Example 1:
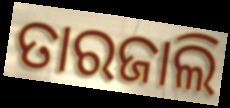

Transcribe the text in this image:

ତାରଜାଲି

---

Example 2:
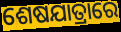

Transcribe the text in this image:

ଶେଷଯାତ୍ରାରେ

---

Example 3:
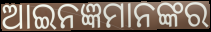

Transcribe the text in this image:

ଆଇନଜ୍ଞମାନଙ୍କର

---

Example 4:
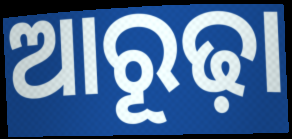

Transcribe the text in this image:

ଆରୂଢ଼ା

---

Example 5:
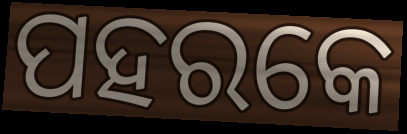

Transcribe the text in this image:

ପହରକେ